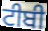
ਟੀਬੀ